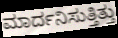
ಮಾರ್ದನಿಸುತ್ತಿತ್ತು